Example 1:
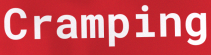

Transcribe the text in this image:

Cramping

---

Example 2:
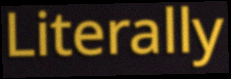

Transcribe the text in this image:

Literally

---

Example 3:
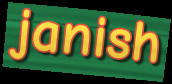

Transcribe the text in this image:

janish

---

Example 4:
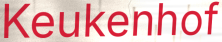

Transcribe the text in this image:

Keukenhof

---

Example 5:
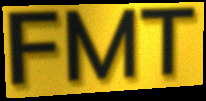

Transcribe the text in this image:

FMT